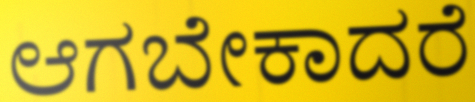
ಆಗಬೇಕಾದರೆ